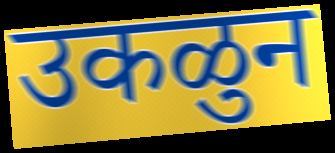
उकळुन